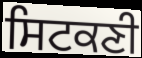
ਸਿਟਕਣੀ